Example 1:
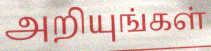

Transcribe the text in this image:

அறியுங்கள்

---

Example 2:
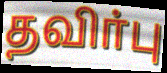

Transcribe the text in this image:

தவிர்பு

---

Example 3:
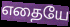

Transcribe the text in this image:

எதையே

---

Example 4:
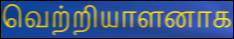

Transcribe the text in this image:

வெற்றியாளனாக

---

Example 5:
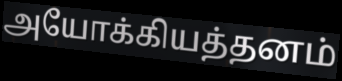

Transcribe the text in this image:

அயோக்கியத்தனம்